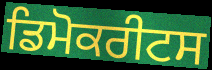
ਡਿਮੋਕਰੀਟਸ